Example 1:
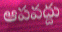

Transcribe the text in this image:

ఆపవద్దు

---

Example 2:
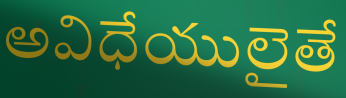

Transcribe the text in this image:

అవిధేయులైతే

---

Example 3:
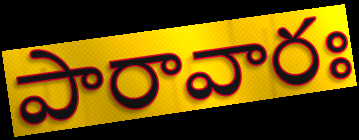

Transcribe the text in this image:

పారావారః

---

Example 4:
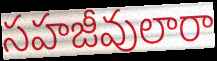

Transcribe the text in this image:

సహజీవులారా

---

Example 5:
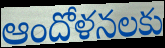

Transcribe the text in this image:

ఆందోళనలకు